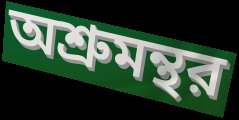
অশ্রুমন্থর